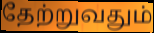
தேற்றுவதும்